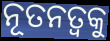
ନୂତନତ୍ବକୁ